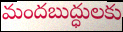
మందబుద్ధులకు